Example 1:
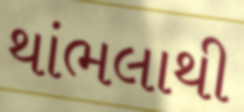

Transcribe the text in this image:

થાંભલાથી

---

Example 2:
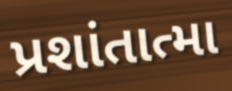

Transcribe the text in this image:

પ્રશાંતાત્મા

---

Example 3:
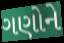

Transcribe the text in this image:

ગણોને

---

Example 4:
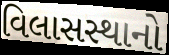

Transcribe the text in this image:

વિલાસસ્થાનો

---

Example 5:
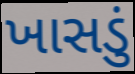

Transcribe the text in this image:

ખાસડું